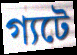
গ্যটে